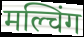
मल्चिंग